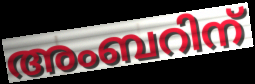
അംബറിന്